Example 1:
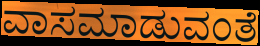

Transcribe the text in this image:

ವಾಸಮಾಡುವಂತೆ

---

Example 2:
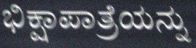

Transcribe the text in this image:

ಭಿಕ್ಷಾಪಾತ್ರೆಯನ್ನು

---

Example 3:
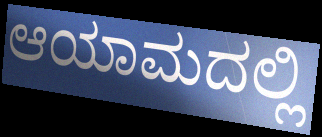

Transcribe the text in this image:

ಆಯಾಮದಲ್ಲಿ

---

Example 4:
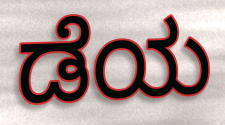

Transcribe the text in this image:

ಡೆಯ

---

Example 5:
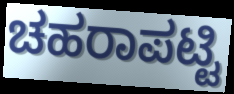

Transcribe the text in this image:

ಚಹರಾಪಟ್ಟಿ